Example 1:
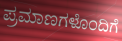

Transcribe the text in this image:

ಪ್ರಮಾಣಗಳೊಂದಿಗೆ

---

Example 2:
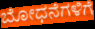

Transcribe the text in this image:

ಬೋಧನೆಗಳಿಗೆ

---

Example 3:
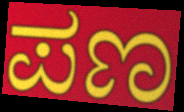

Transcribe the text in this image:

ಪಣ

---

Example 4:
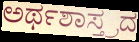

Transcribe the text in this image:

ಅರ್ಥಶಾಸ್ತ್ರದ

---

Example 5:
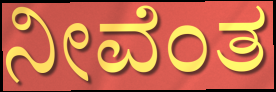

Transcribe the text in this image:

ನೀವೆಂತ